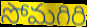
సోమగిరి